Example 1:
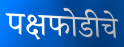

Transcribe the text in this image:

पक्षफोडीचे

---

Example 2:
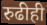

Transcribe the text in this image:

रुढीही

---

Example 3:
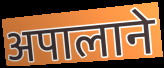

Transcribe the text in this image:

अपालाने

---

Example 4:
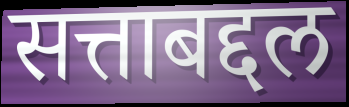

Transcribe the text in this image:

सत्ताबद्दल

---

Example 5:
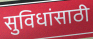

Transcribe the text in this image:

सुविधांसाठी